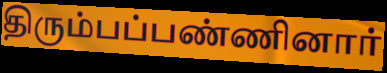
திரும்பப்பண்ணினார்